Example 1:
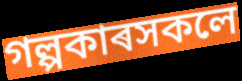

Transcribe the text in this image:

গল্পকাৰসকলে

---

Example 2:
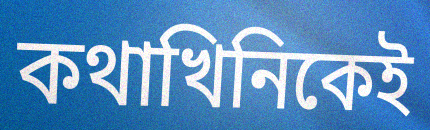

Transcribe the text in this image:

কথাখিনিকেই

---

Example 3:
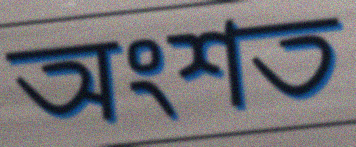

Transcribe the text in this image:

অংশত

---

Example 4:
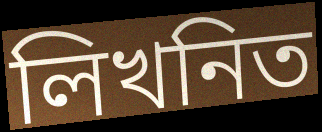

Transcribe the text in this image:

লিখনিত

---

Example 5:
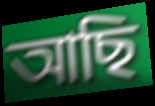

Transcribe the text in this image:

আছি